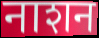
नाशन